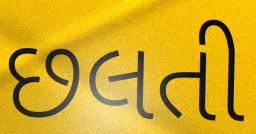
છલતી